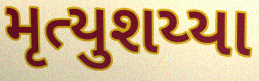
મૃત્યુશય્યા